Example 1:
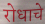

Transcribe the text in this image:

रोधाचे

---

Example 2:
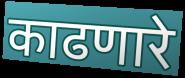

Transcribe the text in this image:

काढणारे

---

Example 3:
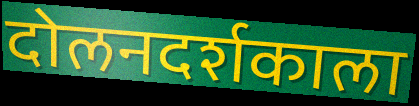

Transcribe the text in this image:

दोलनदर्शकाला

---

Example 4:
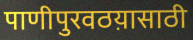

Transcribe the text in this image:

पाणीपुरवठय़ासाठी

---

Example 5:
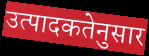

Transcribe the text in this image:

उत्पादकतेनुसार